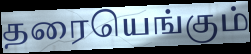
தரையெங்கும்